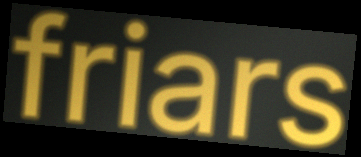
friars